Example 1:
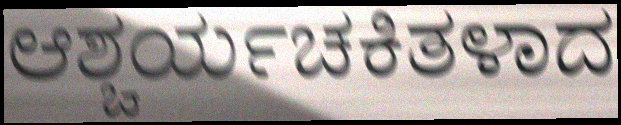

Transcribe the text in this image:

ಆಶ್ಚರ್ಯಚಕಿತಳಾದ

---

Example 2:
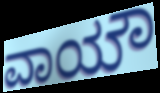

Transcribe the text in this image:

ವಾಯೌ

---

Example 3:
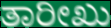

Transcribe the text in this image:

ತಾರೀಖು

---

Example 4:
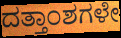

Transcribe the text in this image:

ದತ್ತಾಂಶಗಳೇ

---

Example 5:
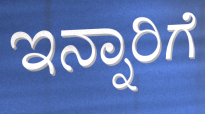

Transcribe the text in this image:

ಇನ್ನಾರಿಗೆ